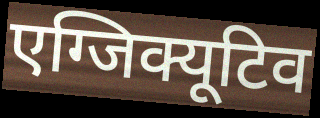
एग्जिक्यूटिव